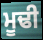
ਮੂਢੀ